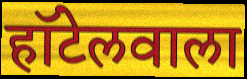
हॉटेलवाला